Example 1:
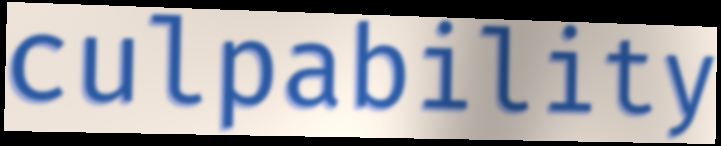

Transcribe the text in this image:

culpability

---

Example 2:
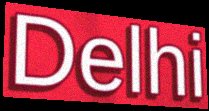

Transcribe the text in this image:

Delhi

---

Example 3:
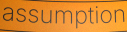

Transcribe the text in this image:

assumption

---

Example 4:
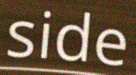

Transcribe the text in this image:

side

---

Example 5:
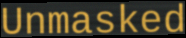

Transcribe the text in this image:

Unmasked